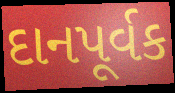
દાનપૂર્વક